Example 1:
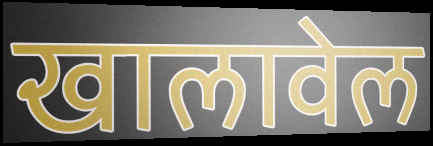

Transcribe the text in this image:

खालावेल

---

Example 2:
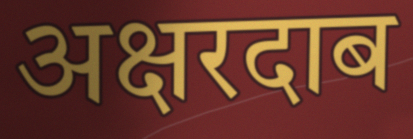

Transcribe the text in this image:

अक्षरदाब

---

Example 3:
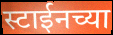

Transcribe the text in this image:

स्टाईनच्या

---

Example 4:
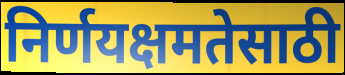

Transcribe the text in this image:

निर्णयक्षमतेसाठी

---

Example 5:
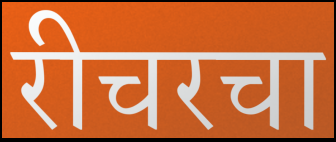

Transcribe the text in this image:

रीचरचा